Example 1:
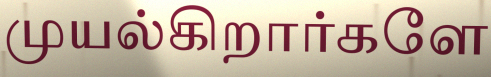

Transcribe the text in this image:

முயல்கிறார்களே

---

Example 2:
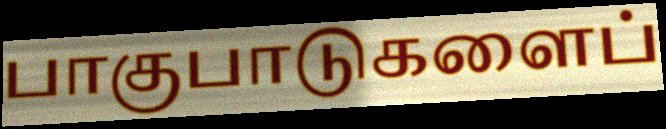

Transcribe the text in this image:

பாகுபாடுகளைப்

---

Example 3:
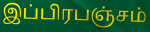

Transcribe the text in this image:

இப்பிரபஞ்சம்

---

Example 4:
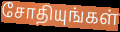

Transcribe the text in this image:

சோதியுங்கள்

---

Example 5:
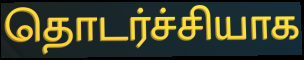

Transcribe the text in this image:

தொடர்ச்சியாக